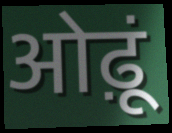
ओढ़ूं